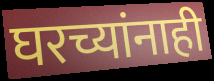
घरच्यांनाही